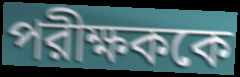
পরীক্ষককে